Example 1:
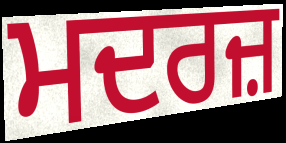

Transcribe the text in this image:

ਮਦਰਜ਼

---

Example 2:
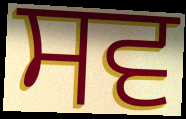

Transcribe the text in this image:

ਸਵ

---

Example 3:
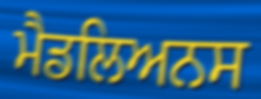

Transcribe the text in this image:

ਮੈਡਲਿਅਨਸ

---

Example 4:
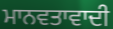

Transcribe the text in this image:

ਮਾਨਵਤਾਵਾਦੀ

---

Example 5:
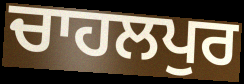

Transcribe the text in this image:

ਚਾਹਲਪੁਰ